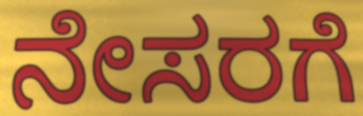
ನೇಸರಗೆ